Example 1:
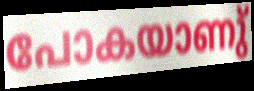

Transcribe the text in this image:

പോകയാണു്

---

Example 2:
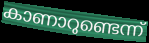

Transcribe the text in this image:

കാണാറുണ്ടെന്ന്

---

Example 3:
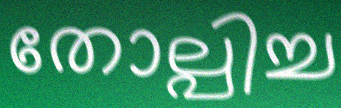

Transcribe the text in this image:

തോല്പിച്ച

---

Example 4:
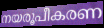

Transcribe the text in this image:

നയരൂപീകരണ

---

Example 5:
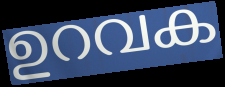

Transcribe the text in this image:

ഉറവക